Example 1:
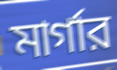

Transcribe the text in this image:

মার্গার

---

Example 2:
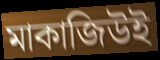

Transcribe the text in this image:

মাকাজিউই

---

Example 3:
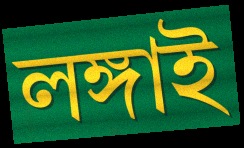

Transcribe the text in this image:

লঙ্গাই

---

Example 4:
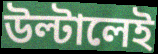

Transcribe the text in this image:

উল্টালেই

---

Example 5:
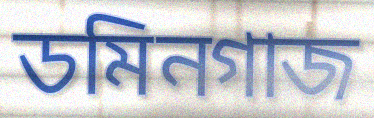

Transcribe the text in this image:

ডমিনগাজ